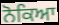
ਨੋਕਿਆ